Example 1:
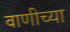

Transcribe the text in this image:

वाणीच्या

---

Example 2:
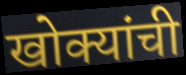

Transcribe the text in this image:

खोक्यांची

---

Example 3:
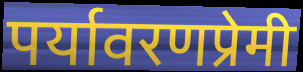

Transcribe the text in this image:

पर्यावरणप्रेमी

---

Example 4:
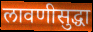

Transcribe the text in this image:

लावणीसुद्धा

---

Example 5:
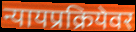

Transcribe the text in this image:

न्यायप्रक्रियेवर